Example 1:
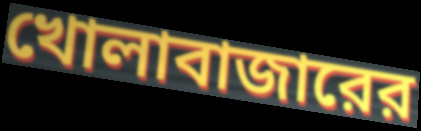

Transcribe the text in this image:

খোলাবাজারের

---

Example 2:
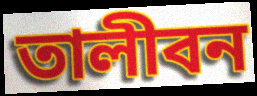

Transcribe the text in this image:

তালীবন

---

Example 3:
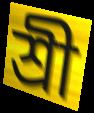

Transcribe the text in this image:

শ্রী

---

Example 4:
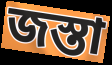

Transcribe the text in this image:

জস্তা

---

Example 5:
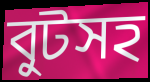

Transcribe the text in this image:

বুটসহ